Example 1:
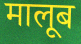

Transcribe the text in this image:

मालूब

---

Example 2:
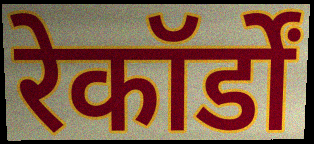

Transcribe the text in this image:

रेकॉर्डों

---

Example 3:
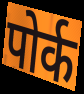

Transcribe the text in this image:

पोर्क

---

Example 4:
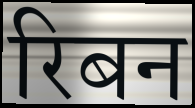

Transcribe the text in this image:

रिबन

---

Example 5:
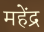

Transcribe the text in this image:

महेंद्र